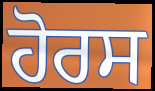
ਹੋਰਸ